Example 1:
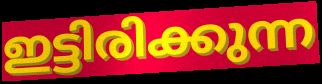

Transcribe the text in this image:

ഇട്ടിരിക്കുന്ന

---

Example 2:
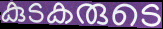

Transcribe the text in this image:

കുടകരുടെ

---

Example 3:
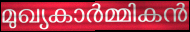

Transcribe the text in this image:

മുഖ്യകാർമ്മികൻ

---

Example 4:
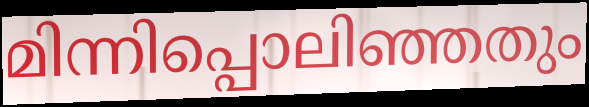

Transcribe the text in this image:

മിന്നിപ്പൊലിഞ്ഞതും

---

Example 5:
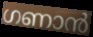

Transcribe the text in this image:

ഗണാൻ